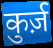
कुर्ज़